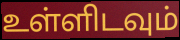
உள்ளிடவும்